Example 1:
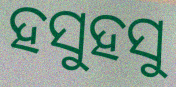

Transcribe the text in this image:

ହସୁହସୁ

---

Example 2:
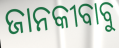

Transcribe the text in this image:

ଜାନକୀବାବୁ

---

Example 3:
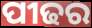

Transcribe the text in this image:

ପୀଢର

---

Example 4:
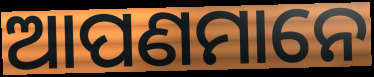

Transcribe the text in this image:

ଆପଣମାନେ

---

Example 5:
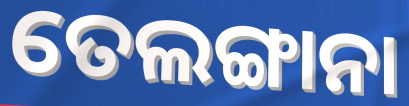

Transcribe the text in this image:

ତେଲଙ୍ଗାନା